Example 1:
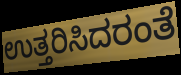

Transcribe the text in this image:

ಉತ್ತರಿಸಿದರಂತೆ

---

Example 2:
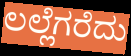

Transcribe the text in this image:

ಲಲ್ಲೆಗರೆದು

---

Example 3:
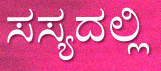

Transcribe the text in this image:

ಸಸ್ಯದಲ್ಲಿ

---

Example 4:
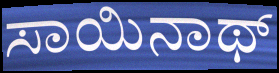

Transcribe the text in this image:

ಸಾಯಿನಾಥ್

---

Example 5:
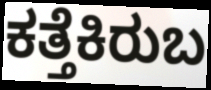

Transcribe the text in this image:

ಕತ್ತೆಕಿರುಬ